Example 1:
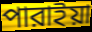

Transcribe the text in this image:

পারাইয়া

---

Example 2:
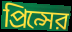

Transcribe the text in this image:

প্রিন্সের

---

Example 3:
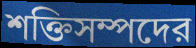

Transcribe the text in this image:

শক্তিসম্পদের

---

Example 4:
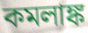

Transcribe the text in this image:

কমলাঙ্ক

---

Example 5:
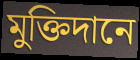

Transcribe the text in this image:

মুক্তিদানে